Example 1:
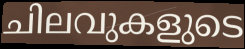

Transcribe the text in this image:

ചിലവുകളുടെ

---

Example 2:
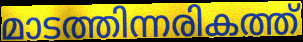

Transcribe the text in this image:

മാടത്തിന്നരികത്ത്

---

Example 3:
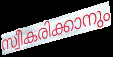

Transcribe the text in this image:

സ്വീകരിക്കാനും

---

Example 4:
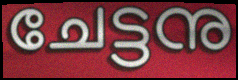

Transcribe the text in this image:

ചേട്ടനു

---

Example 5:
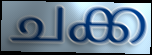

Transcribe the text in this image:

ചക്ക